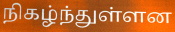
நிகழ்ந்துள்ளன